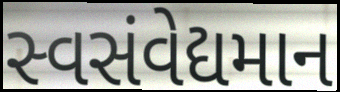
સ્વસંવેદ્યમાન